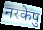
नरकेषु